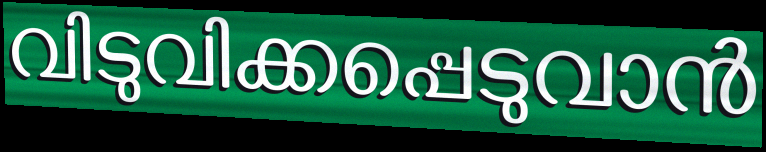
വിടുവിക്കപ്പെടുവാൻ